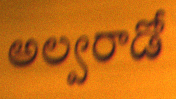
అల్వరాడో